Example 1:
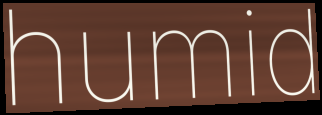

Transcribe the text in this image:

humid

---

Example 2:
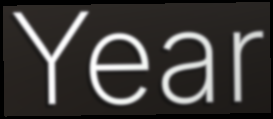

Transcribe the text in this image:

Year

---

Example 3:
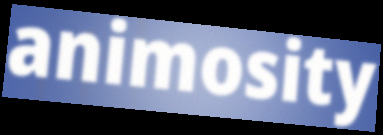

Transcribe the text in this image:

animosity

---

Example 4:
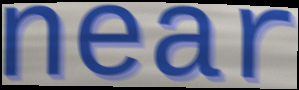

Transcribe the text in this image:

near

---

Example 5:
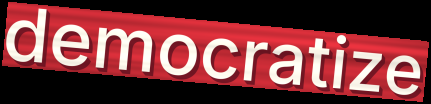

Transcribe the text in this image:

democratize